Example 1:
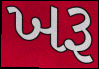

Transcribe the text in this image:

ખરૂ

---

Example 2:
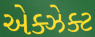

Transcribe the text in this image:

એક્ઝેક્ટ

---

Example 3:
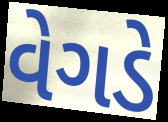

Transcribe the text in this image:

વેગડે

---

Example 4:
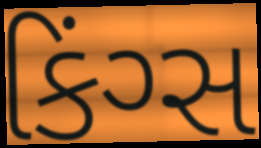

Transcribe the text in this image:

કિંગ્સ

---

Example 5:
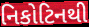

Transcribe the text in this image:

નિકોટિનથી